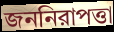
জননিরাপত্তা